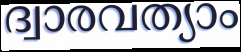
ദ്വാരവത്യാം